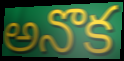
అనొక